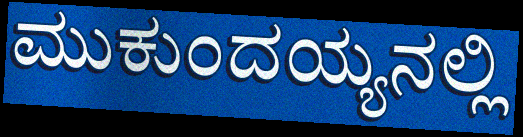
ಮುಕುಂದಯ್ಯನಲ್ಲಿ